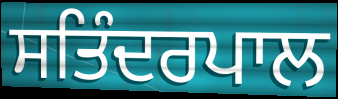
ਸਤਿੰਦਰਪਾਲ